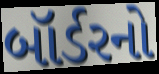
બૉર્ડરનો